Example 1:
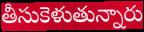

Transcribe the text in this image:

తీసుకెళుతున్నారు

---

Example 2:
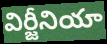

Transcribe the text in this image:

విర్జీనియా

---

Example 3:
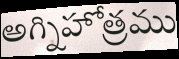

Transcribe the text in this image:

అగ్నిహోత్రము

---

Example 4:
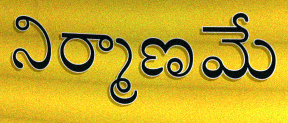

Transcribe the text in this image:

నిర్మాణమే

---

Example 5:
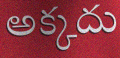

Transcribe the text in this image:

అక్కదు